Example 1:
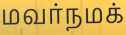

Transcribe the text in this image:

மவர்நமக்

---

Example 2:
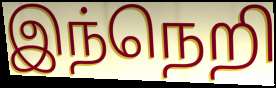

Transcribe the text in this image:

இந்நெறி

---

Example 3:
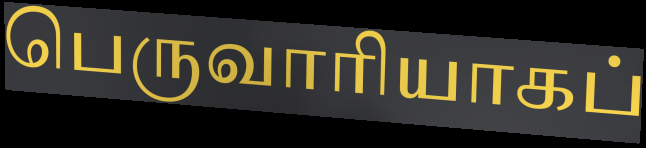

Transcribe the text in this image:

பெருவாரியாகப்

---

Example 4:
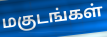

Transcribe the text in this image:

மகுடங்கள்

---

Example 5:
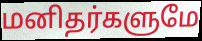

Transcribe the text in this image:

மனிதர்களுமே